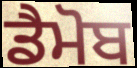
ਡੈਮੋਬ